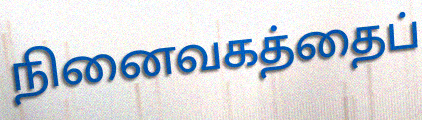
நினைவகத்தைப்